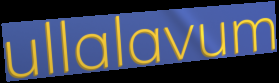
ullalavum